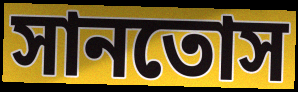
সানতোস